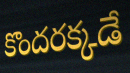
కొందరక్కడే